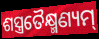
ଶସ୍ତ୍ରତୈକ୍ଷ୍ମଣ୍ୟମ୍